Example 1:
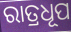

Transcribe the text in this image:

ରାତ୍ରଧୂପ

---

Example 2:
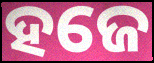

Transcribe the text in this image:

ହଜେ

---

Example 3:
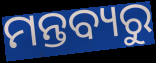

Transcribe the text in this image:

ମନ୍ତବ୍ୟରୁ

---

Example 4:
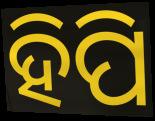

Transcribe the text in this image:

ହିପି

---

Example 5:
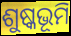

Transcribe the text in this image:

ଶୁଷ୍କଭୂମି